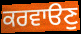
ਕਰਵਾੳਣੁ